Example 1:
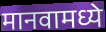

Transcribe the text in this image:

मानवामध्ये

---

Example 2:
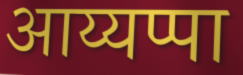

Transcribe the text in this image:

आय्यप्पा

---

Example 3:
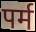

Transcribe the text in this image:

पर्म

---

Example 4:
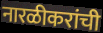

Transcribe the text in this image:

नारळीकरांची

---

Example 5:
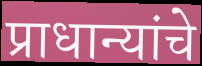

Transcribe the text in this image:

प्राधान्यांचे